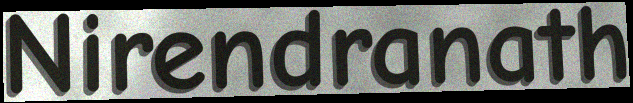
Nirendranath